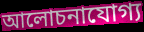
আলোচনাযোগ্য